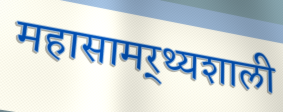
महासामर्थ्यशाली